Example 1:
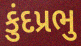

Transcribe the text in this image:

કુંદપ્રભુ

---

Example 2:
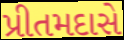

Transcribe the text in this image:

પ્રીતમદાસે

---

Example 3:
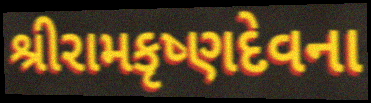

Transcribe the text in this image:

શ્રીરામકૃષ્ણદેવના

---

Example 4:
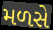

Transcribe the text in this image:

મળસે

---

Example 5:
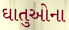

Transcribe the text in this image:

ઘાતુઓના